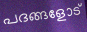
പദങ്ങളോട്